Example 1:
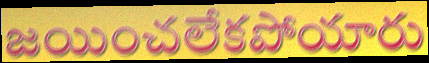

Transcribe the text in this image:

జయించలేకపోయారు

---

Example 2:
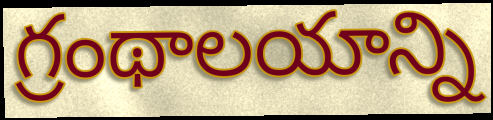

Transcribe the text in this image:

గ్రంథాలయాన్ని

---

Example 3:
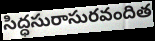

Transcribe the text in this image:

సిద్ధసురాసురవందిత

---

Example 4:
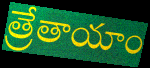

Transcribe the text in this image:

త్రేతాయాం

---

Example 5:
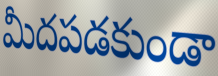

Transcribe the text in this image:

మీదపడకుండా